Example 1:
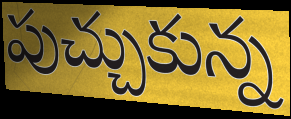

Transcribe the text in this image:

పుచ్చుకున్న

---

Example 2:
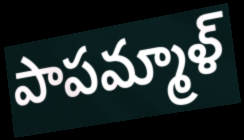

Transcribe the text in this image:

పాపమ్మాళ్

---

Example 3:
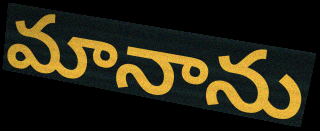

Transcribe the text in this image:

మానాను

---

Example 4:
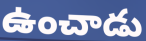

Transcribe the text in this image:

ఉంచాడు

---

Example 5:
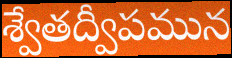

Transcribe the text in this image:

శ్వేతద్వీపమున